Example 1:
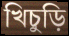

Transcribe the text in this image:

খিচুড়ি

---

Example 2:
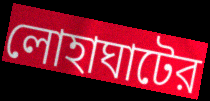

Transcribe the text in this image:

লোহাঘাটের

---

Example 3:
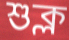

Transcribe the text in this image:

শুক্ল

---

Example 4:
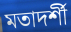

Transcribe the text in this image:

মতাদর্শী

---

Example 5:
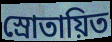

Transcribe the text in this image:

স্রোতায়িত